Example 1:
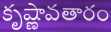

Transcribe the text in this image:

కృష్ణావతారం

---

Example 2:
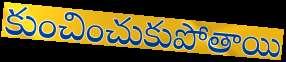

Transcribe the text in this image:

కుంచించుకుపోతాయి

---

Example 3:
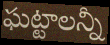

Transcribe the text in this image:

ఘట్టాలన్నీ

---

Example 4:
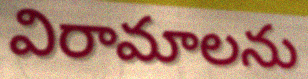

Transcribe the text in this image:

విరామాలను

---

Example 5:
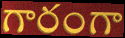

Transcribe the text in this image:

గారంగా